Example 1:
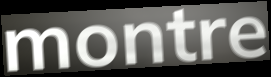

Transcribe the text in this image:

montre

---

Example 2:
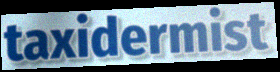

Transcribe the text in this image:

taxidermist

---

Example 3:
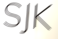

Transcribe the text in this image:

SJK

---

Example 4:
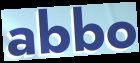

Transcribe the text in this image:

abbo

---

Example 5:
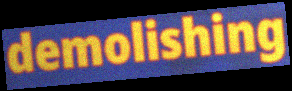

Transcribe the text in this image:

demolishing